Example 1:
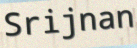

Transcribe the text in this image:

Srijnan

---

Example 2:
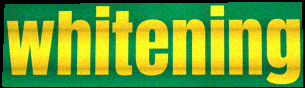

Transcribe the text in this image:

whitening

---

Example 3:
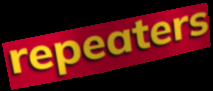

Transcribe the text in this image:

repeaters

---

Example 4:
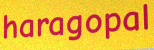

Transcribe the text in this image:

haragopal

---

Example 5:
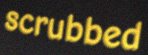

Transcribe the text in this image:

scrubbed